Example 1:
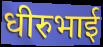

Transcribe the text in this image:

धीरुभाई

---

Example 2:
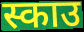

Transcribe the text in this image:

स्काउ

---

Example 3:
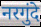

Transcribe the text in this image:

नरगुंदे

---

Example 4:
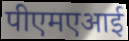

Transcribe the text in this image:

पीएमएआई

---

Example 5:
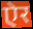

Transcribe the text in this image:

ऐर